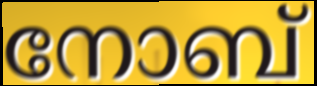
നോബ്